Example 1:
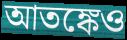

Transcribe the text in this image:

আতঙ্কেও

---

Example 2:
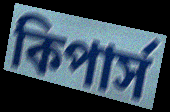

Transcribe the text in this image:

কিপার্স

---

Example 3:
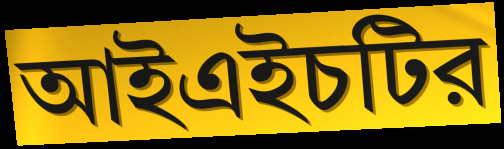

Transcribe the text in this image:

আইএইচটির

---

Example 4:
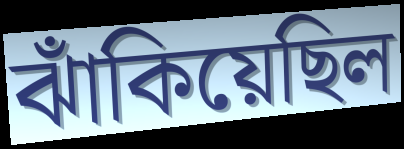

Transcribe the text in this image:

ঝাঁকিয়েছিল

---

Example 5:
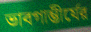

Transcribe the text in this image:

ভাবগাম্ভীর্যের